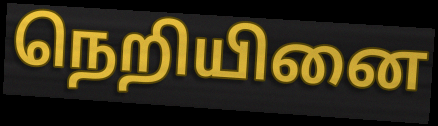
நெறியினை